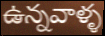
ఉన్నవాళ్ళ